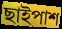
ছাইপাশ